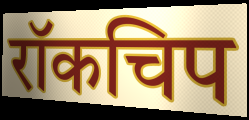
रॉकचिप